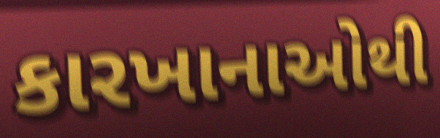
કારખાનાઓથી